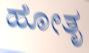
ಹೋತೃ